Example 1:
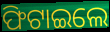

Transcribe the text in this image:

ଫିଟାଇଲେ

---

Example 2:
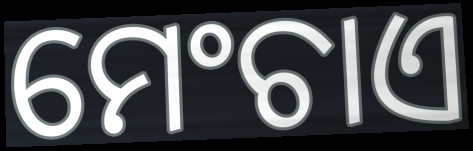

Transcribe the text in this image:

ମେଂଚାଏ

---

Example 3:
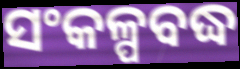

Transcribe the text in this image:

ସଂକଳ୍ପବଦ୍ଧ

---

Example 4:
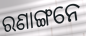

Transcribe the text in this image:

ରଣାଙ୍ଗନେ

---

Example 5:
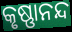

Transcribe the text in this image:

କୃଷ୍ଣାନନ୍ଦ